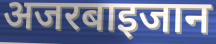
अजरबाइजान